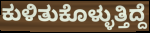
ಕುಳಿತುಕೊಳ್ಳುತ್ತಿದ್ದೆ